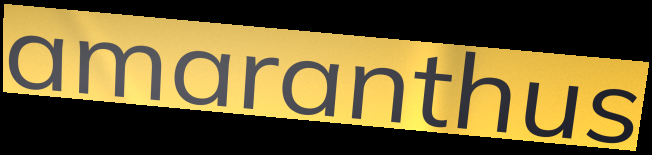
amaranthus